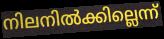
നിലനിൽക്കില്ലെന്ന്